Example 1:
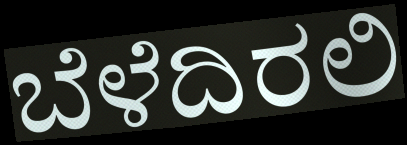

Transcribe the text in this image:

ಬೆಳೆದಿರಲಿ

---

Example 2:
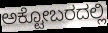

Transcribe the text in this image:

ಅಕ್ಟೋಬರದಲ್ಲಿ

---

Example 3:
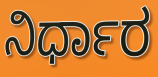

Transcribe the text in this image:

ನಿರ್ಧಾರ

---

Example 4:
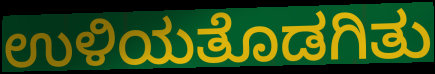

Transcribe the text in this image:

ಉಳಿಯತೊಡಗಿತು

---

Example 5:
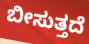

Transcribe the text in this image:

ಬೀಸುತ್ತದೆ